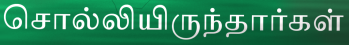
சொல்லியிருந்தார்கள்